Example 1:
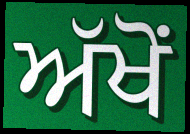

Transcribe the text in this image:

ਅੱਖੋਂ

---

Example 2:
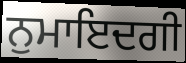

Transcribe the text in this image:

ਨੁਮਾਇਦਗੀ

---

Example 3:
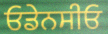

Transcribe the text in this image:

ਓਡੇਨਸੀਓ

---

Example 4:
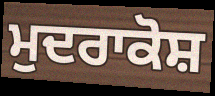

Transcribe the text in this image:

ਮੁਦਰਾਕੋਸ਼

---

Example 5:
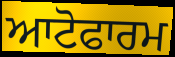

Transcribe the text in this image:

ਆਟੋਫਾਰਮ